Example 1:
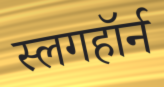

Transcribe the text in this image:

स्लगहॉर्न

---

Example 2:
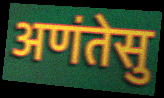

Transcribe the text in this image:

अणंतेसु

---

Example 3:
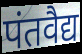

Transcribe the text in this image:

पंतवैद्य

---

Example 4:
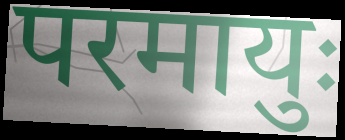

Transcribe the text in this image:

परमायुः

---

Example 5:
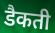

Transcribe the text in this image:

डैकती